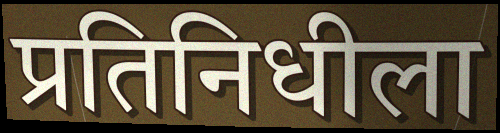
प्रतिनिधीला